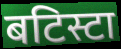
बटिस्टा